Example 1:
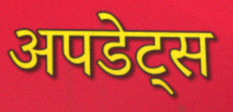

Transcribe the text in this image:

अपडेट्स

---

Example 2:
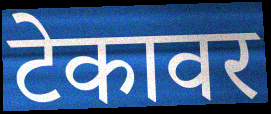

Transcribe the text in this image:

टेकावर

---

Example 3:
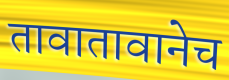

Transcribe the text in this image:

तावातावानेच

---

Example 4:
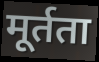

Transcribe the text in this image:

मूर्तता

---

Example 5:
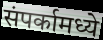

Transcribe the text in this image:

संपर्कामध्ये